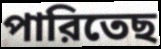
পারিতেছ